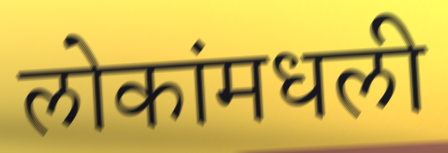
लोकांमधली